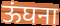
ऊंघना